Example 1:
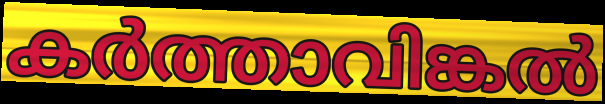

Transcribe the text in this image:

കർത്താവിങ്കൽ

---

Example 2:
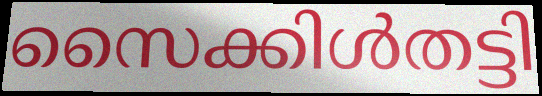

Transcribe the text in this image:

സൈക്കിൾതട്ടി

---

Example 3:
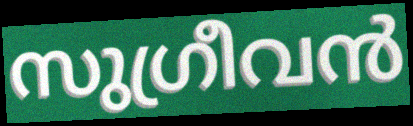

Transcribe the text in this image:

സുഗ്രീവൻ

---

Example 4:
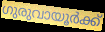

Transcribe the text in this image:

ഗുരുവായൂർക്ക്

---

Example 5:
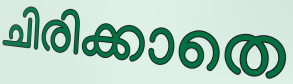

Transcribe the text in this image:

ചിരിക്കാതെ